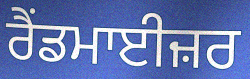
ਰੈਂਡਮਾਈਜ਼ਰ